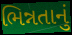
ભિન્નતાનું